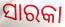
ସାରକା